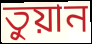
তুয়ান